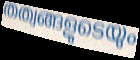
തത്വങ്ങളുടെയും